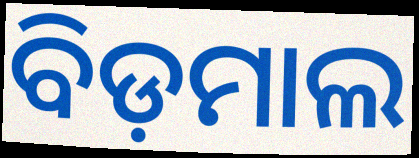
ବିଡ଼ମାଲ